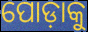
ପୋଡ଼ାକୁ